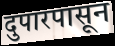
दुपारपासून